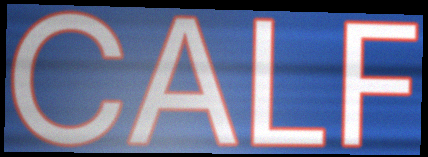
CALF